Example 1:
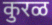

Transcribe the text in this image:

कुरळ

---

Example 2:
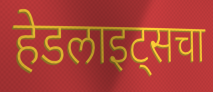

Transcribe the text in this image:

हेडलाइट्सचा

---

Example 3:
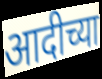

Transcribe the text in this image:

आदीच्या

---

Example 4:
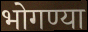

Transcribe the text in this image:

भोगण्या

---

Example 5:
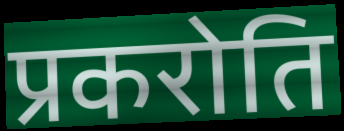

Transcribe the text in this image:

प्रकरोति